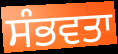
ਸੰਭਵਤਾ